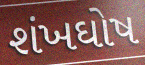
શંખઘોષ